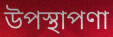
উপস্থাপণা